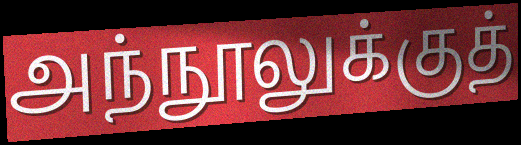
அந்நூலுக்குத்